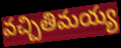
వచ్చితిమయ్య